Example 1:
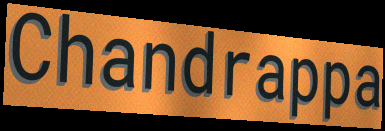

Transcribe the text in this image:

Chandrappa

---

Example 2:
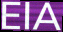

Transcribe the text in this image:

EIA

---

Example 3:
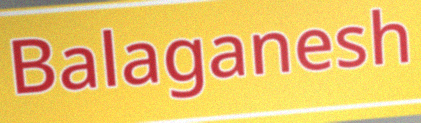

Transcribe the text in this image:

Balaganesh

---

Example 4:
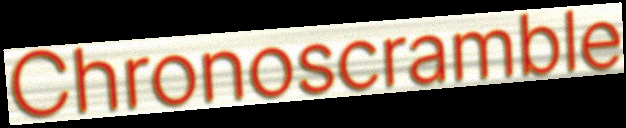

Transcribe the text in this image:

Chronoscramble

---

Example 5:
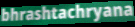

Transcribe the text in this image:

bhrashtachryana